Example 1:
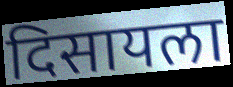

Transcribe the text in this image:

दिसायला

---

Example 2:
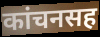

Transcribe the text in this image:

कांचनसह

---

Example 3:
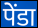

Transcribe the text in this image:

पेंडा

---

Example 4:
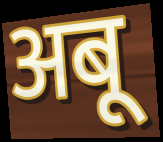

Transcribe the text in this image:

अबू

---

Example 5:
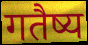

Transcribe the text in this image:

गतैष्य